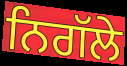
ਨਿਗੱਲੇ